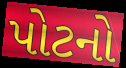
પોટનો